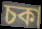
চকা